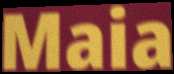
Maia